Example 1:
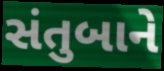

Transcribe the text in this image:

સંતુબાને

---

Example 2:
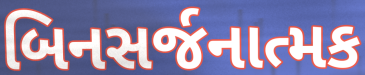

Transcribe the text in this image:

બિનસર્જનાત્મક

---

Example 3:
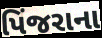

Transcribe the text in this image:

પિંજરાના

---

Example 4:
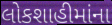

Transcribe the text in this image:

લોકશાહીમાંના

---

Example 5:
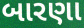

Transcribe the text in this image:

બારણા